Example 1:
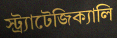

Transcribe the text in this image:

স্ট্র্যাটেজিক্যালি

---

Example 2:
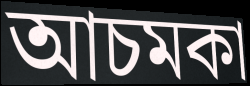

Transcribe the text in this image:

আচমকা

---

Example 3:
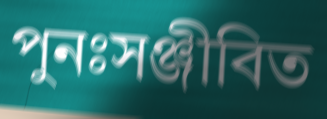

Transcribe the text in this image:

পুনঃসঞ্জীবিত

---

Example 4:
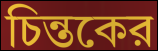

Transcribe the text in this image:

চিন্তকের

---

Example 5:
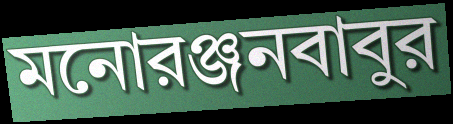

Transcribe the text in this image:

মনোরঞ্জনবাবুর